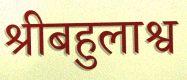
श्रीबहुलाश्व